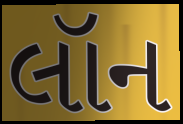
લૉન